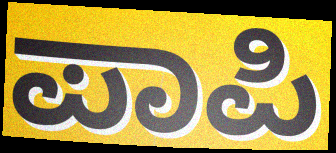
ಪಾಪಿ